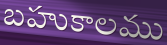
బహుకాలము